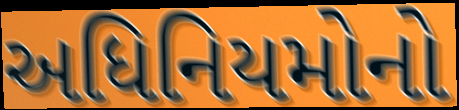
અધિનિયમોનો